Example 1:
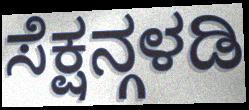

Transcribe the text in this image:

ಸೆಕ್ಷನ್ಗಳಡಿ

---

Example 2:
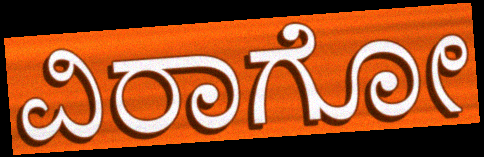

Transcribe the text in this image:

ವಿರಾಗೋ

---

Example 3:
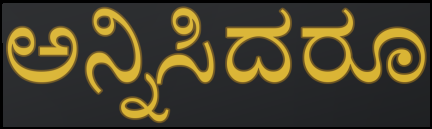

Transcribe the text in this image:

ಅನ್ನಿಸಿದರೂ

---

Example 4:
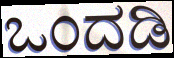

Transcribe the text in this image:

ಒಂದಡಿ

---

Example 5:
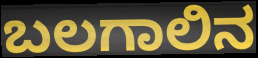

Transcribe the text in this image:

ಬಲಗಾಲಿನ